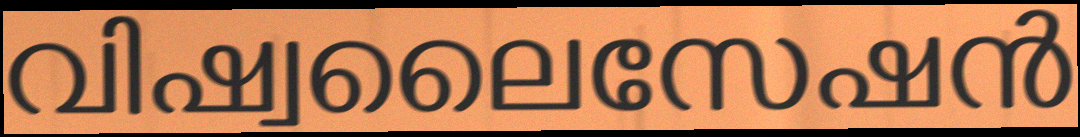
വിഷ്വലൈസേഷൻ